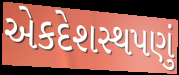
એકદેશસ્થપણું